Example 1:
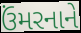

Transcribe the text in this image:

ઉંમરનાને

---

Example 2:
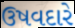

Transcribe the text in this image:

ઉષવદારે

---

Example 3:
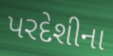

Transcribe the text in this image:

પરદેશીના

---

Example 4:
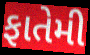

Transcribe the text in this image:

ફાતેમી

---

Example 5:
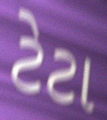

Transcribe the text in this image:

ટેટા